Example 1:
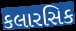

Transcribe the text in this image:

કલારસિક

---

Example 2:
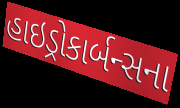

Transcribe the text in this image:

હાઇડ્રોકાર્બન્સના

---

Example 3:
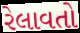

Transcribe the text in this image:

રેલાવતો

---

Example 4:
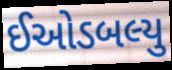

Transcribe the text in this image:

ઈઓડબલ્યુ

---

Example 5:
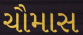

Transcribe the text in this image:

ચૌમાસ